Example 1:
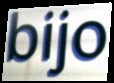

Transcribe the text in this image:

bijo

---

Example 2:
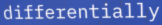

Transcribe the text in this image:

differentially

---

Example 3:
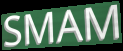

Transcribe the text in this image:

SMAM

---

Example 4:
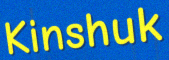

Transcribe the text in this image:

Kinshuk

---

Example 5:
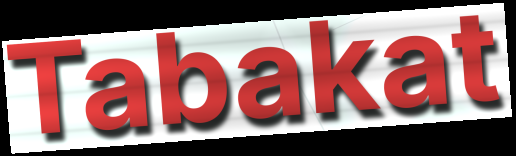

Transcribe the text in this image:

Tabakat